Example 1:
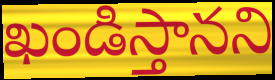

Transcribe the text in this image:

ఖండిస్తానని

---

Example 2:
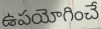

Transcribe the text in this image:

ఉపయోగించే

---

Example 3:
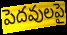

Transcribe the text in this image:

పెదవులపై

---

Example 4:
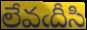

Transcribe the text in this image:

లేవఁదీసి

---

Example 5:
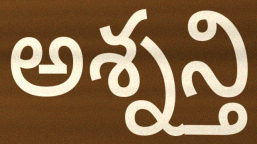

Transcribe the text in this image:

అశ్నన్తి